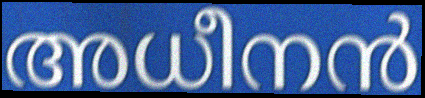
അധീനൻ